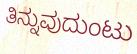
ತಿನ್ನುವುದುಂಟು